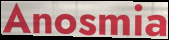
Anosmia